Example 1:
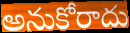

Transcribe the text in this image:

అనుకోరాదు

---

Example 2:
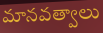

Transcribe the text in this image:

మానవత్వాలు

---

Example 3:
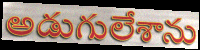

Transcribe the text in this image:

అడుగులేశాను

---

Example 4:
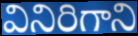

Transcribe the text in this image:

వినిరిగాని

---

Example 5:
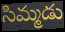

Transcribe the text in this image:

సిమ్మడు